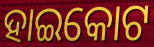
ହାଇକୋଟ